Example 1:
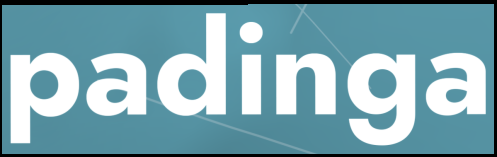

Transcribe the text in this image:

padinga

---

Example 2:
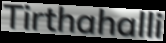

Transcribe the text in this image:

Tirthahalli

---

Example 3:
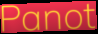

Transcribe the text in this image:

Panot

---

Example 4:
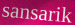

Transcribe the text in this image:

sansarik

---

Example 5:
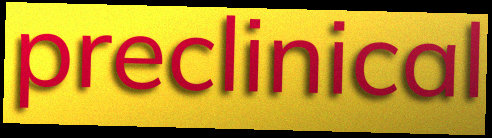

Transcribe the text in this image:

preclinical